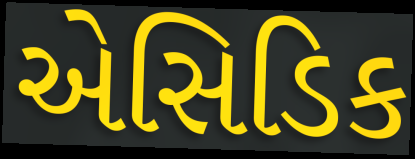
એસિડિક